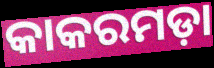
କାକରମଡ଼ା